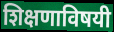
शिक्षणाविषयी